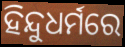
ହିନ୍ଦୁଧର୍ମରେ